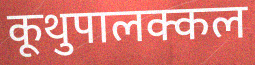
कूथुपालक्कल